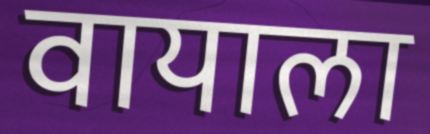
वायाला